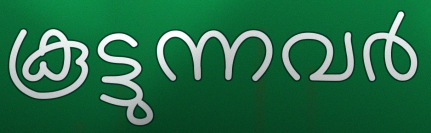
കൂട്ടുന്നവർ